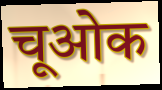
चूओक